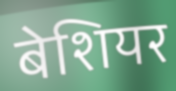
बेशियर